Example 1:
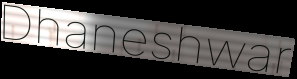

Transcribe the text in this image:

Dhaneshwar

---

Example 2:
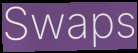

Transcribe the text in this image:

Swaps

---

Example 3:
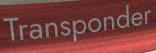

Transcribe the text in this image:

Transponder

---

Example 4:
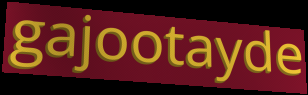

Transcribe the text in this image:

gajootayde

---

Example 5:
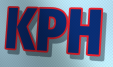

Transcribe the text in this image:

KPH